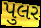
પુલર